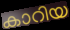
കാറിയ